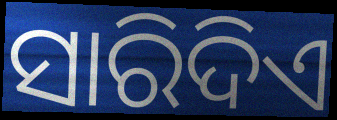
ସାରିଦିଏ